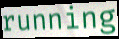
running